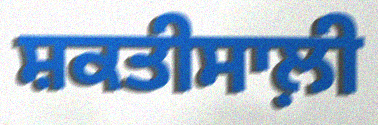
ਸ਼ਕਤੀਸਾਲ਼ੀ